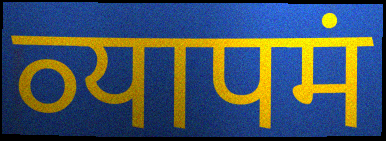
व्‍यापमं